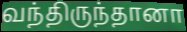
வந்திருந்தானா